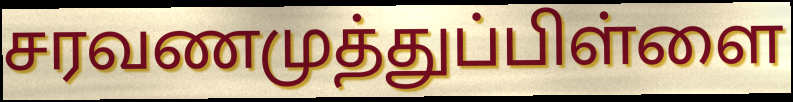
சரவணமுத்துப்பிள்ளை